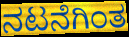
ನಟನೆಗಿಂತ